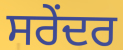
ਸਰੇਂਦਰ